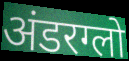
अंडरग्लो